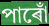
পাৰোঁ